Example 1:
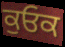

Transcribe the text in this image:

ਕੁਓਕ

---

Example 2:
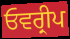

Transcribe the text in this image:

ਓਵਰ੍ਰੀਪ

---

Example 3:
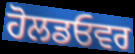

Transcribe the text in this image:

ਹੋਲਡਓਵਰ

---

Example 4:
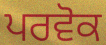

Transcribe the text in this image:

ਪਰਵੋਕ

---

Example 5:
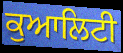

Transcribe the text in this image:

ਕੁਆਲਿਟੀ